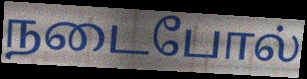
நடைபோல்